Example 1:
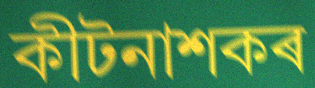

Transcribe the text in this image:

কীটনাশকৰ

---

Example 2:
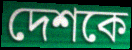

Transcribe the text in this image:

দেশকে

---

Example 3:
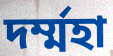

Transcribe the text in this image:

দৰ্ম্মহা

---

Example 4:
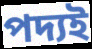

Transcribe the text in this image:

পদ্যই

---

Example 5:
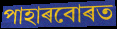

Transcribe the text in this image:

পাহাৰবোৰত